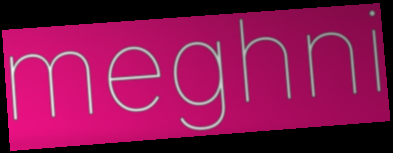
meghni